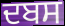
ਦਬਸ